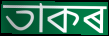
তাকৰ